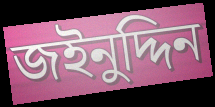
জইনুদ্দিন